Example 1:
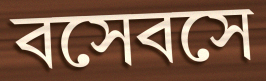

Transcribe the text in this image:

বসেবসে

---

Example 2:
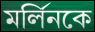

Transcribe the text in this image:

মর্লিনকে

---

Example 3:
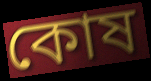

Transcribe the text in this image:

কোষ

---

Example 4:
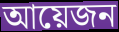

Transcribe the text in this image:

আয়েজন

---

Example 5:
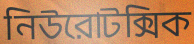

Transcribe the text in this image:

নিউরোটক্সিক